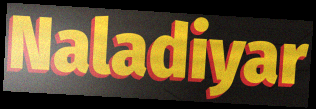
Naladiyar